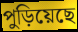
পুড়িয়েছে